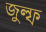
জুল্ফ